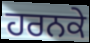
ਹਰਨਕੇ